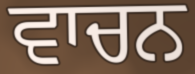
ਵਾਚਨ